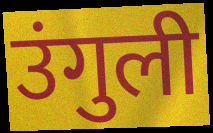
उंगुली